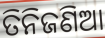
ତିନିଜଣିଆ